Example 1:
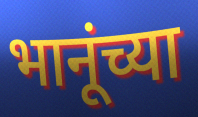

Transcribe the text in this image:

भानूंच्या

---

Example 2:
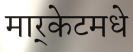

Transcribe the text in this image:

मार्केटमधे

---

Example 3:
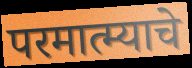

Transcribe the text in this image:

परमात्म्याचे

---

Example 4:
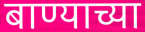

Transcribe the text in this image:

बाण्याच्या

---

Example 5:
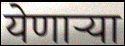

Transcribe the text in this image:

येणार्‍या